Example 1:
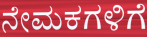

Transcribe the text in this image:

ನೇಮಕಗಳಿಗೆ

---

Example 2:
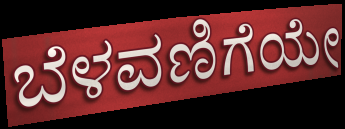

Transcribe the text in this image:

ಬೆಳವಣಿಗೆಯೇ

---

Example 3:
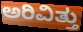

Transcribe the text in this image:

ಅರಿವಿತ್ತು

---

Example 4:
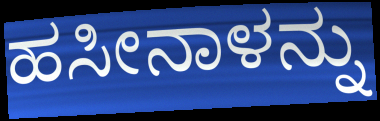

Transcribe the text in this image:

ಹಸೀನಾಳನ್ನು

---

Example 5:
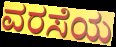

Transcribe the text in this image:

ವರಸೆಯ